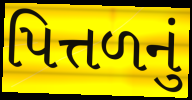
પિત્તળનું